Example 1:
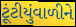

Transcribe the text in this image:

ટૂંટીયુંવાળીને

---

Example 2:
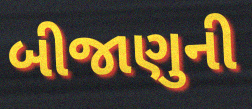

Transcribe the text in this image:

બીજાણુની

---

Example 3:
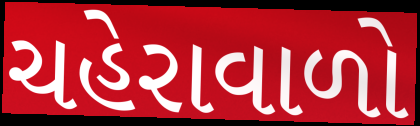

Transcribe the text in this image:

ચહેરાવાળો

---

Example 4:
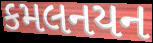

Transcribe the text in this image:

કમલનયન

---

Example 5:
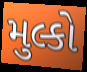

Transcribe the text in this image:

મુલ્કો